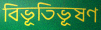
বিভূতিভূষণ